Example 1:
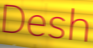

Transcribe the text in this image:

Desh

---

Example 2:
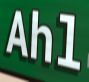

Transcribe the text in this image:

Ahl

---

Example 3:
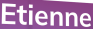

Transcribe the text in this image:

Etienne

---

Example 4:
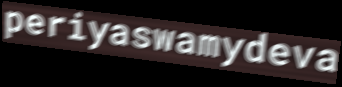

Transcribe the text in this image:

periyaswamydeva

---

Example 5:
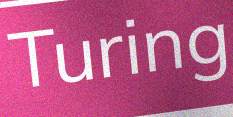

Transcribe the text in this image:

Turing